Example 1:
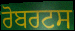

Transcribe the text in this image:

ਰੋਬਰਟਸ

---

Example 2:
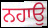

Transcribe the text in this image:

ਨਹਾਉ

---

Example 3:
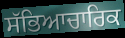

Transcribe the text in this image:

ਸੱਭਿਆਚਾਰਿਕ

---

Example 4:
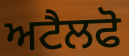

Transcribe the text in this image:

ਅਟੈਲਫੋ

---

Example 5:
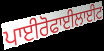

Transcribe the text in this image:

ਪਾਈਰੋਫਾਈਲਾਈਟ